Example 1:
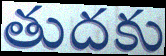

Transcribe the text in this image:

తుదకు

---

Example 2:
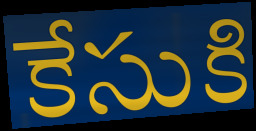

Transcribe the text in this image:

కేసుకి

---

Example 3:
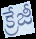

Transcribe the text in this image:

క్రేజీ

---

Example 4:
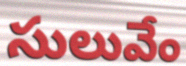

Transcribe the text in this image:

సులువేం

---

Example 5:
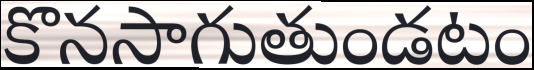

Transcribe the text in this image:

కొనసాగుతుండటం